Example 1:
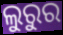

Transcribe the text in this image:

ଲୁରୁର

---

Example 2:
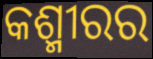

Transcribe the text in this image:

କଶ୍ମୀରର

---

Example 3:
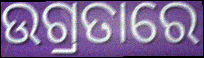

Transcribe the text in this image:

ଉଗ୍ରତାରେ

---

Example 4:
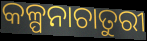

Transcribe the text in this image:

କଳ୍ପନାଚାତୁରୀ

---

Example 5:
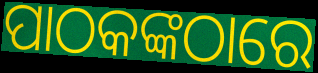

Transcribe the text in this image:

ପାଠକଙ୍କଠାରେ